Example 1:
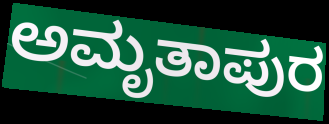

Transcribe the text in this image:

ಅಮೃತಾಪುರ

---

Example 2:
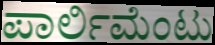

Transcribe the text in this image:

ಪಾರ್ಲಿಮೆಂಟು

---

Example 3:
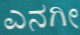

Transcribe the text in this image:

ಎನಗೀ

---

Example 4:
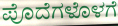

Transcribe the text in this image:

ಪೊದೆಗಳೊಳಗೆ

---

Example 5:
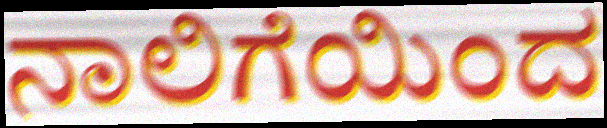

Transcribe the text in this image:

ನಾಲಿಗೆಯಿಂದ